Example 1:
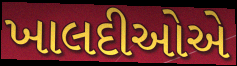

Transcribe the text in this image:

ખાલદીઓએ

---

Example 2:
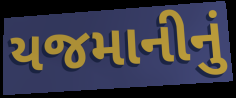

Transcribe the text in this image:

યજમાનીનું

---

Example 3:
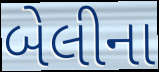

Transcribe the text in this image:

બેલીના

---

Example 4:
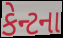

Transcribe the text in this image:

કેન્ટના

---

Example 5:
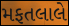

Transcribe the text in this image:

મફતલાલે